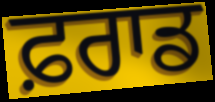
ਫ਼ਰਾਡ